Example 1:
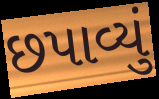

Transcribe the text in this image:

છપાવ્યું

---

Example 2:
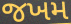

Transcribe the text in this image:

જખમ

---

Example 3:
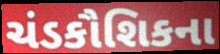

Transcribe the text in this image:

ચંડકૌશિકના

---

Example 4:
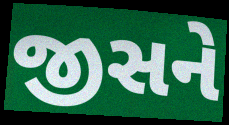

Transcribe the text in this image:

જીસને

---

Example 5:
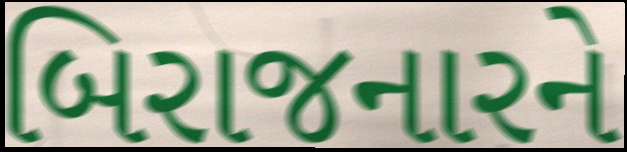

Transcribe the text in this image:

બિરાજનારને